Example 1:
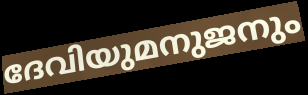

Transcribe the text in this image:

ദേവിയുമനുജനും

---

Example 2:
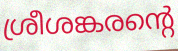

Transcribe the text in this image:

ശ്രീശങ്കരന്റെ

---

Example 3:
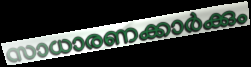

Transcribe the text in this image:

സാധാരണക്കാർക്കും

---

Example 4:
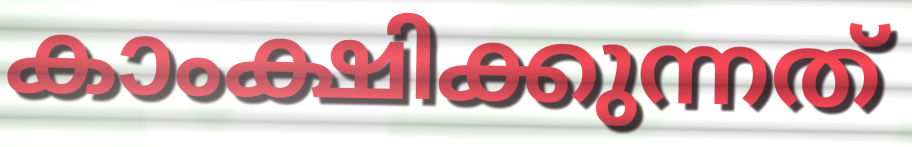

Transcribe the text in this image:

കാംക്ഷിക്കുന്നത്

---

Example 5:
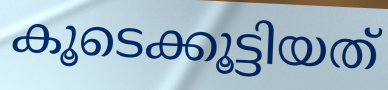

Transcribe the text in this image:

കൂടെക്കൂട്ടിയത്